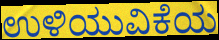
ಉಳಿಯುವಿಕೆಯ